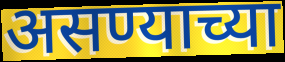
असण्याच्या